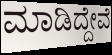
ಮಾಡಿದ್ದೇವೆ